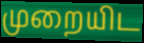
முறையிட